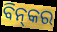
ବିନ୍‌କର